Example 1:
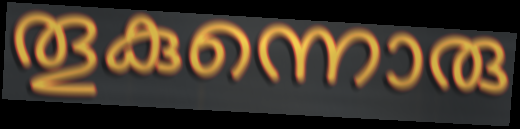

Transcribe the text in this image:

തൂകുന്നൊരു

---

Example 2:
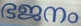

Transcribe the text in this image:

ഭജനം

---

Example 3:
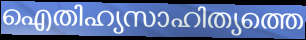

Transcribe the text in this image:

ഐതിഹ്യസാഹിത്യത്തെ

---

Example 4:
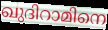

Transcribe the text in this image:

ഖുദിറാമിനെ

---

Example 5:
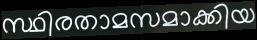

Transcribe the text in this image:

സ്ഥിരതാമസമാക്കിയ